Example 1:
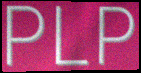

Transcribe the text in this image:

PLP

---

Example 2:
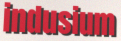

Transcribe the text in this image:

indusium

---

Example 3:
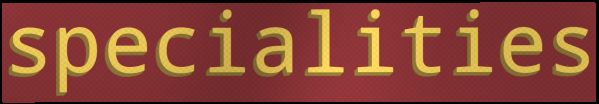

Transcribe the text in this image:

specialities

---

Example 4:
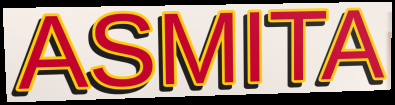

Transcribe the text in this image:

ASMITA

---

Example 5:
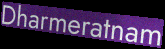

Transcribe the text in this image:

Dharmeratnam